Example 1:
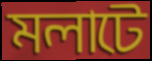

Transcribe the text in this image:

মলাটে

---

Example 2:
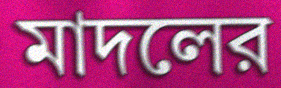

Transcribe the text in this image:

মাদলের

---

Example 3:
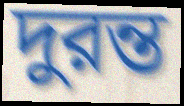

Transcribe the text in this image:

দুরন্ত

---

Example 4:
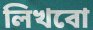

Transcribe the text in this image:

লিখবো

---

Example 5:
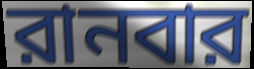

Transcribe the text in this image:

রানবার